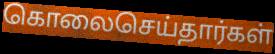
கொலைசெய்தார்கள்